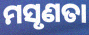
ମସୃଣତା